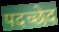
पदच्छेद